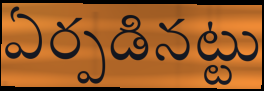
ఏర్పడినట్టు